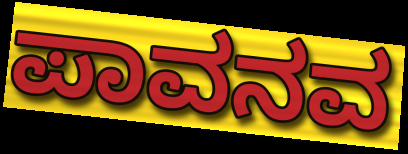
ಪಾವನವ